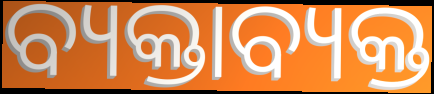
ବ୍ୟକ୍ତାବ୍ୟକ୍ତ